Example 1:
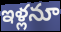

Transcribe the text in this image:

ఇళ్లనూ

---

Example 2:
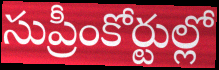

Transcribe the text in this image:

సుప్రీంకోర్టుల్లో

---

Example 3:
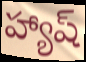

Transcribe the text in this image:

హ్యాష్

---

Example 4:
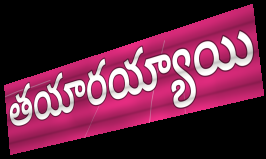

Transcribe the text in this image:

తయారయ్యాయి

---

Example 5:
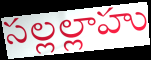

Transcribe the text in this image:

సల్లల్లాహు